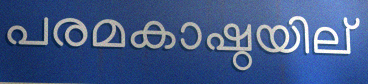
പരമകാഷ്ഠയില്